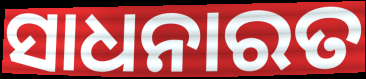
ସାଧନାରତ